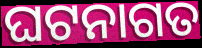
ଘଟନାଗତ